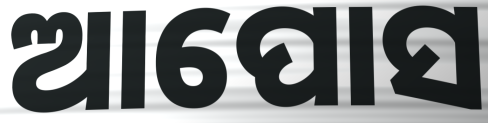
ଆପୋସ